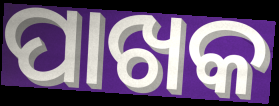
ପାଖକ